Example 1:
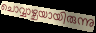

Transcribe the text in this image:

ചൊവ്വാഴ്ചയായിരുന്നു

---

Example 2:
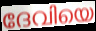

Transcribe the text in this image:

ദേവിയെ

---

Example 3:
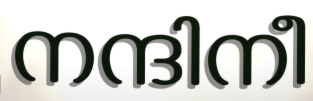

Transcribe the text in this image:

നന്ദിനീ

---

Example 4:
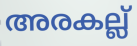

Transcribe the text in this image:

അരകല്ല്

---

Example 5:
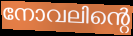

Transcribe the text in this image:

നോവലിന്റെ